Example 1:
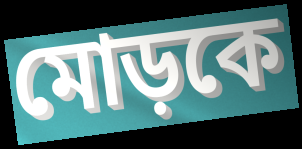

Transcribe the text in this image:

মোড়কে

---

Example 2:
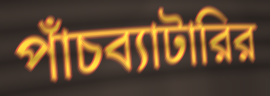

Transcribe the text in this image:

পাঁচব্যাটারির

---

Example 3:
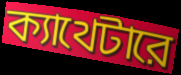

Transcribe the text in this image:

ক্যাথেটারে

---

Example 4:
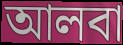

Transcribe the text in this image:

আলবা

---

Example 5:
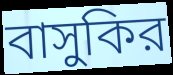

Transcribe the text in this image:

বাসুকির